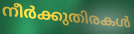
നീർക്കുതിരകൾ